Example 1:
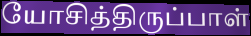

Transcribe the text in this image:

யோசித்திருப்பாள்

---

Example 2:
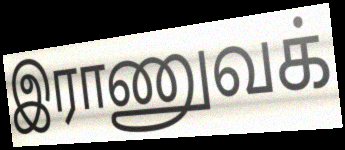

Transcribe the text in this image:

இராணுவக்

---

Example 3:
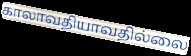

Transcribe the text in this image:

காலாவதியாவதில்லை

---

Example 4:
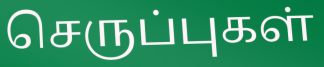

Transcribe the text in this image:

செருப்புகள்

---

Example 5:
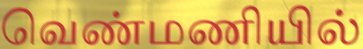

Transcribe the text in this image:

வெண்மணியில்